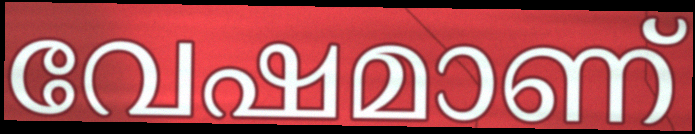
വേഷമാണ്